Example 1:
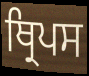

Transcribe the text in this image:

ਥ੍ਰਿਪਸ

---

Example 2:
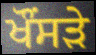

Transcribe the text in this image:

ਖੌਂਸੜੇ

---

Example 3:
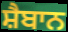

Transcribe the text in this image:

ਸ਼ੈਬਾਨ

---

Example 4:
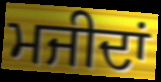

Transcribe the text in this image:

ਮਜੀਦਾਂ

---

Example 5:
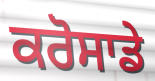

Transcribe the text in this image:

ਕਰੋਸਾਡੇ